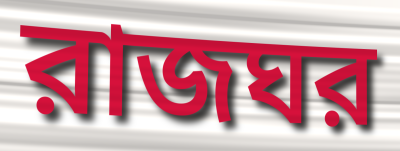
রাজঘর